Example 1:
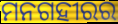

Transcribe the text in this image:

ମନଗହୀରର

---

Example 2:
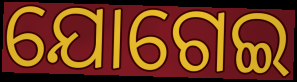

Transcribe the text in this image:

ଯୋଗେଇ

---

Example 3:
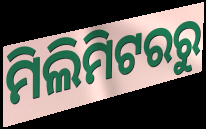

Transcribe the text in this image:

ମିଲିମିଟରରୁ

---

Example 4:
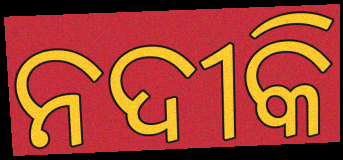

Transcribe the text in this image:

ନଦୀକି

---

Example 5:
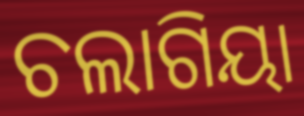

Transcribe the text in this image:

ଚଲାଗିୟା